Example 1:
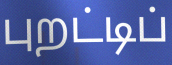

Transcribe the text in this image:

புறட்டிப்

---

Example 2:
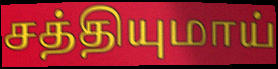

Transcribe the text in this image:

சத்தியுமாய்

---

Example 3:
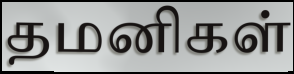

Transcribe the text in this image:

தமனிகள்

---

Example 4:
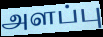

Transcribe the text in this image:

அளப்பு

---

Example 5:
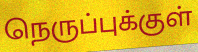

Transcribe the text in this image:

நெருப்புக்குள்